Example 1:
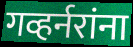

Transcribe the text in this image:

गव्हर्नरांना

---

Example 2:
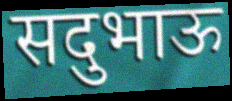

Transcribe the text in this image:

सदुभाऊ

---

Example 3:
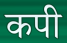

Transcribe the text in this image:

कपी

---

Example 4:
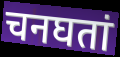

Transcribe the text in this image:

चनघतां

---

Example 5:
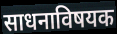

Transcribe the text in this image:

साधनाविषयक